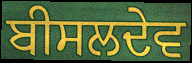
ਬੀਸਲਦੇਵ